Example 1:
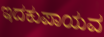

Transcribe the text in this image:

ಇದಕುಪಾಯವ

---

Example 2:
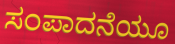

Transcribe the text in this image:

ಸಂಪಾದನೆಯೂ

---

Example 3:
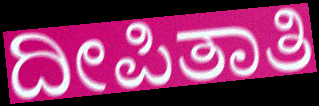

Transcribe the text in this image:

ದೀಪಿತಾತಿ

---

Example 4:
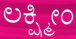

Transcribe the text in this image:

ಲಕ್ಷ್ಮೀಂ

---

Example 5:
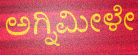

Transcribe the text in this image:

ಅಗ್ನಿಮೀಳೇ